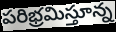
పరిభ్రమిస్తూన్న